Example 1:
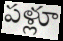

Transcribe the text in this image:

పళ్లూ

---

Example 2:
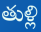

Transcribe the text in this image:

తుళ్లి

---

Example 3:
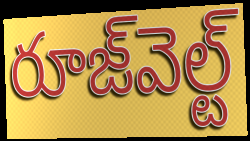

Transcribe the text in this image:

రూజ్‌వెల్ట్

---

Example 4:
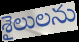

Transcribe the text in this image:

శైలులను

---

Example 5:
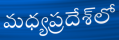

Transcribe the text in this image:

మధ్యప్రదేశ్‌లో